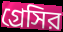
গ্রেসির